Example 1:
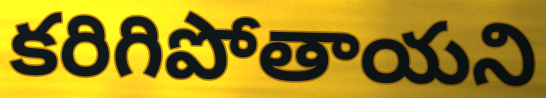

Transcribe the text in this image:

కరిగిపోతాయని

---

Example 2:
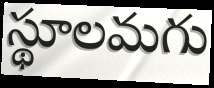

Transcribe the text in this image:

స్థూలమగు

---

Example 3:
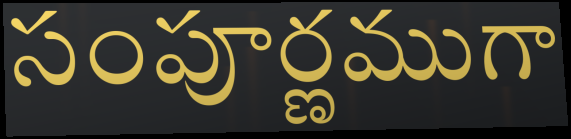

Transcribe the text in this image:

సంపూర్ణముగా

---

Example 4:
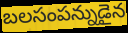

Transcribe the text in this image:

బలసంపన్నుడైన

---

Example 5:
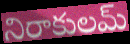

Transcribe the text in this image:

నిరాకులమ్